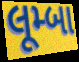
લૂમ્બા